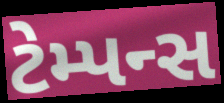
ટેમ્પન્સ